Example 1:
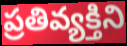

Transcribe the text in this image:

ప్రతివ్యక్తిని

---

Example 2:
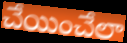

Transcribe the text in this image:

చేయించేలా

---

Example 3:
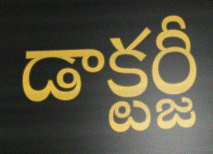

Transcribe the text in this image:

డాక్టర్జీ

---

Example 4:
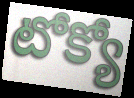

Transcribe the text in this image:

టోక్యో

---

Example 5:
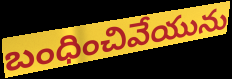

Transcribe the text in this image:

బంధించివేయును